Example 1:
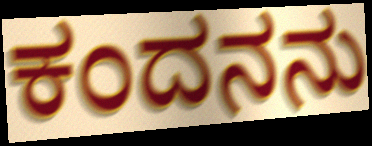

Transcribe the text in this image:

ಕಂದನನು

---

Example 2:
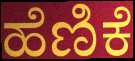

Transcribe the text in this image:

ಹೆಣಿಕೆ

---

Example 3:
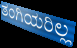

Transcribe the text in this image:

ತಂಗಿಯರಿಲ್ಲ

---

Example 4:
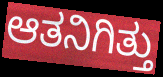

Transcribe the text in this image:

ಆತನಿಗಿತ್ತು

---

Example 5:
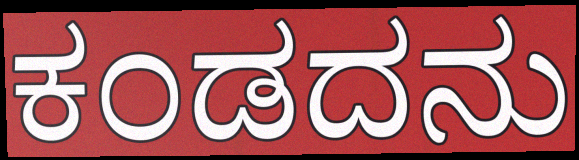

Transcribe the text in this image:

ಕಂಡದನು